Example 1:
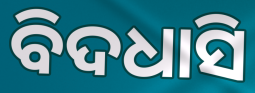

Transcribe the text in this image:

ବିଦଧାସି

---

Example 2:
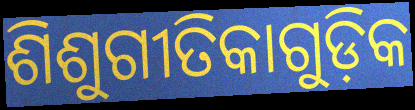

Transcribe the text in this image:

ଶିଶୁଗୀତିକାଗୁଡ଼ିକ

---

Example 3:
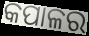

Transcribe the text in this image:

କପାଳର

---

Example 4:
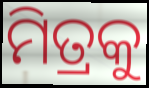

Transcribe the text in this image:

ମିତ୍ରକୁ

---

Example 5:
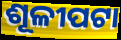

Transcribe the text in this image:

ଶୂଳୀପଟା